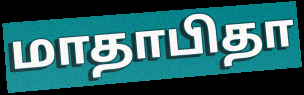
மாதாபிதா